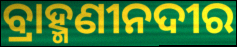
ବ୍ରାହ୍ମଣୀନଦୀର